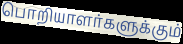
பொறியாளர்களுக்கும்